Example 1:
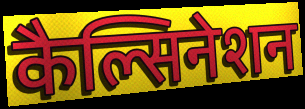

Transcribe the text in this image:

कैल्सिनेशन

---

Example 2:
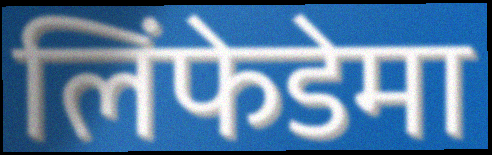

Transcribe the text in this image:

लिंफेडेमा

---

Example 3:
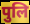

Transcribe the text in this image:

पुलि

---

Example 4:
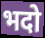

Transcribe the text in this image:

भदो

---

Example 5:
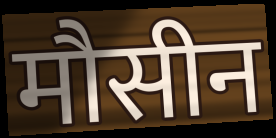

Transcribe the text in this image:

मौसीन